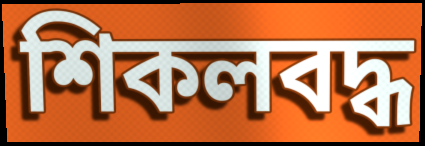
শিকলবদ্ধ